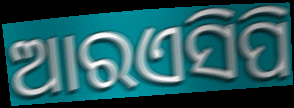
ଆରଏସିପି